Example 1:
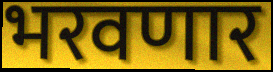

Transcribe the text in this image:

भरवणार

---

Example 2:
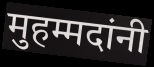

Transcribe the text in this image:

मुहम्मदांनी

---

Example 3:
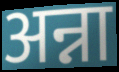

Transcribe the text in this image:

अन्ना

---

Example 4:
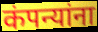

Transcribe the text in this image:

कंपन्यांना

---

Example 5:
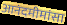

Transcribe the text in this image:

आनंदमीमांसा